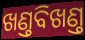
ଖଣ୍ତବିଖଣ୍ତ